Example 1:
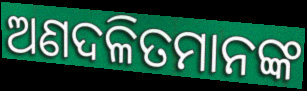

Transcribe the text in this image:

ଅଣଦଳିତମାନଙ୍କ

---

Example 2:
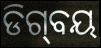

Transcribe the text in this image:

ଡିଗ୍‌ବୟ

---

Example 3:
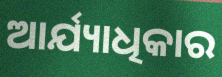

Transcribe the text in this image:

ଆର୍ଯ୍ୟାଧିକାର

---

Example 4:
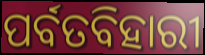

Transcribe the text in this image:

ପର୍ବତବିହାରୀ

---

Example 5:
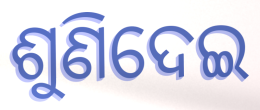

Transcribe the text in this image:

ଶୁଣିଦେଇ